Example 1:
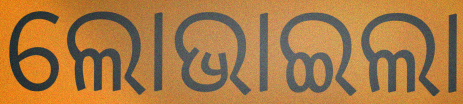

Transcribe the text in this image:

ଲୋଭାଇଲା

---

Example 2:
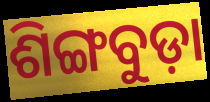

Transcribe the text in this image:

ଶିଙ୍ଗବୁଡ଼ା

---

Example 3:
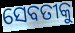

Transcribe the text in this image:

ସେବତୀକୁ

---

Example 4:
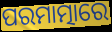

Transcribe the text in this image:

ପରମାତ୍ମାରେ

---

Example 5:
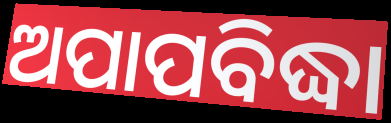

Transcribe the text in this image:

ଅପାପବିଦ୍ଧା